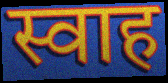
स्वाह